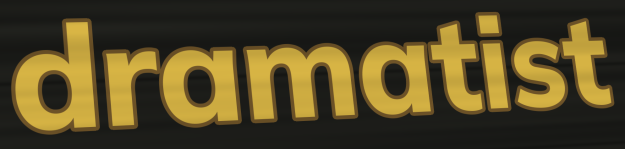
dramatist